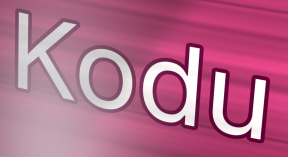
Kodu